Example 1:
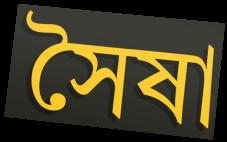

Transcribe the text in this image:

সৈষা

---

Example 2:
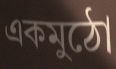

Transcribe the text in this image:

একমুঠো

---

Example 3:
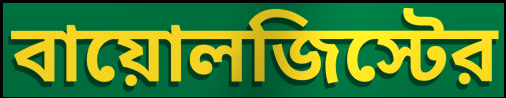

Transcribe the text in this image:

বায়োলজিস্টের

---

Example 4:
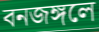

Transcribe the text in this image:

বনজঙ্গলে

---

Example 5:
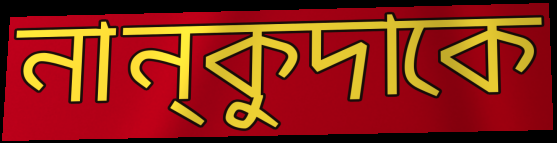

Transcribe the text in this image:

নান্‌কুদাকে